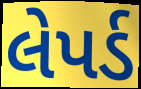
લેપર્ડ